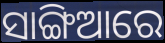
ସାଙ୍ଗିଆରେ